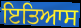
ਇਤਿਆਸ